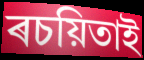
ৰচয়িতাই